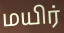
மயிர்